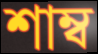
শাম্ব